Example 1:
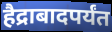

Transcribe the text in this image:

हैद्राबादपर्यंत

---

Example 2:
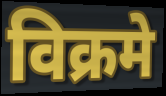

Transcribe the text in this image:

विक्रमे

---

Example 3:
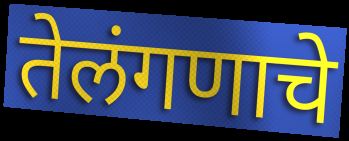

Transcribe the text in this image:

तेलंगणाचे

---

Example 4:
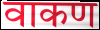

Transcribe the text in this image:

वाकण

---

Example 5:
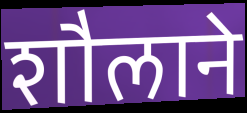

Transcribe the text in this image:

शौलाने